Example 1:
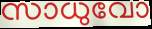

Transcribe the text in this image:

സാധുവോ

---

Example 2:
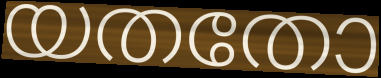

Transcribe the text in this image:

യതതോ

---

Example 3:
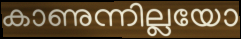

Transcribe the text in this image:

കാണുന്നില്ലയോ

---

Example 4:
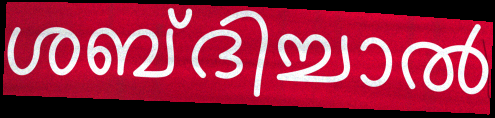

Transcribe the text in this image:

ശബ്ദിച്ചാൽ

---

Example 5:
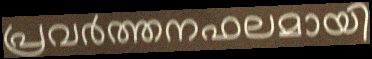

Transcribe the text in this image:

പ്രവർത്തനഫലമായി